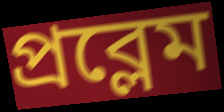
প্ৰব্লেম